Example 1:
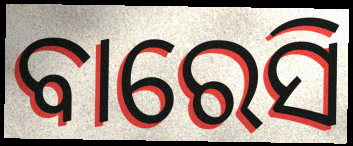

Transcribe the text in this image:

ବାରେସି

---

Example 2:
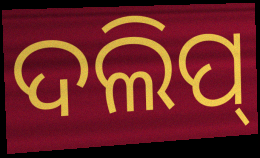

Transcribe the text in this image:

ଦଲିପ୍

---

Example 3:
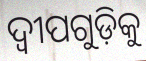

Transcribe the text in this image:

ଦ୍ୱୀପଗୁଡ଼ିକୁ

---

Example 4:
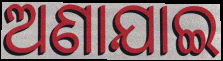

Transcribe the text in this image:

ଅଣାଯାଇ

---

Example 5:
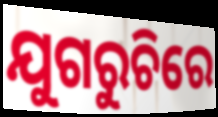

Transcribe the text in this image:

ଯୁଗରୁଚିରେ